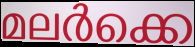
മലർക്കെ